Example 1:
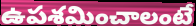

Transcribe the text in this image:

ఉపశమించాలంటే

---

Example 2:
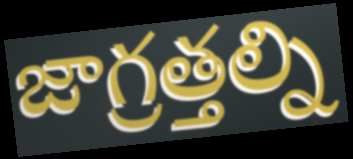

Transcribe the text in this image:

జాగ్రత్తల్ని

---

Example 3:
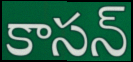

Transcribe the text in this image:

కాసన్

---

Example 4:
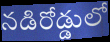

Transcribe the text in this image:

నడిరోడ్డులో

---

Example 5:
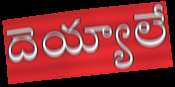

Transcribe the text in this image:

దెయ్యాలే